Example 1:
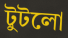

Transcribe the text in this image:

টুটলো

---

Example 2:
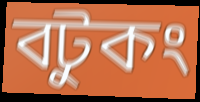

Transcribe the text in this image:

বটুকং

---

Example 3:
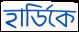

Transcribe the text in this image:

হার্ডিকে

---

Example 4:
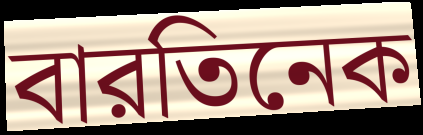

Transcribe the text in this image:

বারতিনেক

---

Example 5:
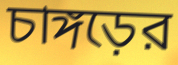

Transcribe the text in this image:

চাঙ্গড়ের